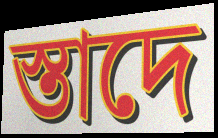
স্তাদে